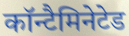
कॉन्टैमिनेटेड